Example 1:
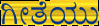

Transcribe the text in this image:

ಗೀತೆಯು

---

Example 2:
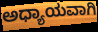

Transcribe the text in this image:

ಅಧ್ಯಾಯವಾಗಿ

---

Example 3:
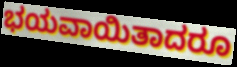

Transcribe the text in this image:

ಭಯವಾಯಿತಾದರೂ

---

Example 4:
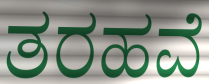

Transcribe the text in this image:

ತರಹವೆ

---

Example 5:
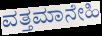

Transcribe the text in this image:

ವತ್ತಮಾನೇಹಿ